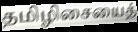
தமிழிசையைத்